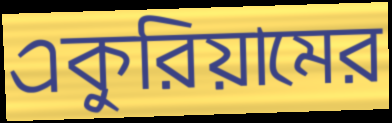
একুরিয়ামের